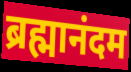
ब्रह्मानंदम